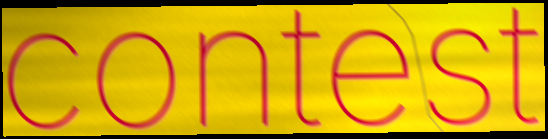
contest